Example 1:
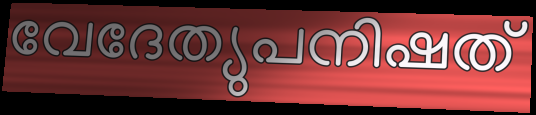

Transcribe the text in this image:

വേദേത്യുപനിഷത്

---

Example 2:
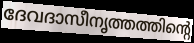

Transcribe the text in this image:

ദേവദാസീനൃത്തത്തിന്റെ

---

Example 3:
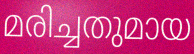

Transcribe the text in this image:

മരിച്ചതുമായ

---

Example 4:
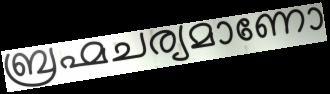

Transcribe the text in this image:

ബ്രഹ്മചര്യമാണോ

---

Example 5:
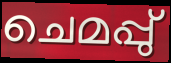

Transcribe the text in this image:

ചെമപ്പു്